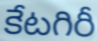
కేటగిరీ